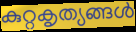
കുറ്റകൃത്യങ്ങൾ